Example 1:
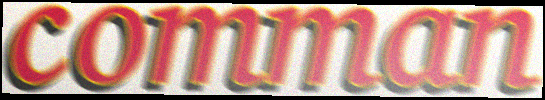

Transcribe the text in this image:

comman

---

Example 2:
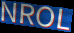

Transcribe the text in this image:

NROL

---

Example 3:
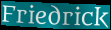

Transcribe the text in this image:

Friedrick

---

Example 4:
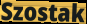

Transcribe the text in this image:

Szostak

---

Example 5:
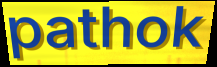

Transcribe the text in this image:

pathok